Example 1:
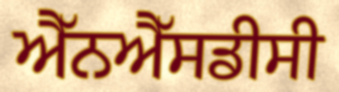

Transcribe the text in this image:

ਐੱਨਐੱਸਡੀਸੀ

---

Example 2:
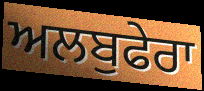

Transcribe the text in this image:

ਅਲਬੁਫੇਰਾ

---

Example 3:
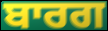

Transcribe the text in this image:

ਬਾਰਗ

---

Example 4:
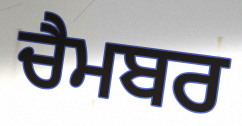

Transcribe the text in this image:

ਚੈਮਬਰ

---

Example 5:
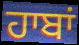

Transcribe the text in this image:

ਹਾਬਾਂ